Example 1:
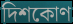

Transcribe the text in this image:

দিশকোণ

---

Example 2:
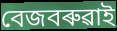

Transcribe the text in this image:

বেজবৰুৱাই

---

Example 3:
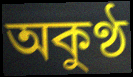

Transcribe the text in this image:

অকুণ্ঠ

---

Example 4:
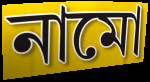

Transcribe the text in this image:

নামো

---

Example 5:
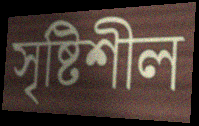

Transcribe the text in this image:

সৃষ্টিশীল